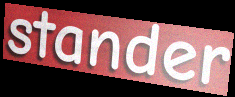
stander